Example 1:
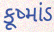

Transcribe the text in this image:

કૂષ્માંડ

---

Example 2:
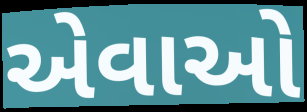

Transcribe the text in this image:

એવાઓ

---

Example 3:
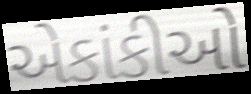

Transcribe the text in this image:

એકાંકીઓ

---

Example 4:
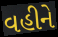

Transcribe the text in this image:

વહીને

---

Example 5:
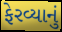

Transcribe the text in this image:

ફેરવ્યાનું